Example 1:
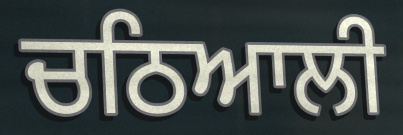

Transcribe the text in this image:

ਚਠਿਆਲੀ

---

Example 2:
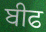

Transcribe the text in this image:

ਬੀਫ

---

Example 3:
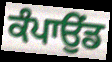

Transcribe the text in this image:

ਕੰਪਾਉਂਡ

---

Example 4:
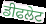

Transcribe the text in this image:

ਡੀਫਲੇਟ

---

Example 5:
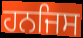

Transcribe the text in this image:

ਹਨਜਿਸ